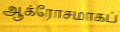
ஆக்ரோசமாகப்